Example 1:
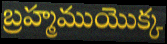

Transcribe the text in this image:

బ్రహ్మముయొక్క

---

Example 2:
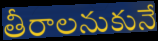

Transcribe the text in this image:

తీరాలనుకునే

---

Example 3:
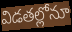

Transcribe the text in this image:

విడతల్లోనూ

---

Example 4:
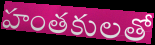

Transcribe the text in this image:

హంతకులతో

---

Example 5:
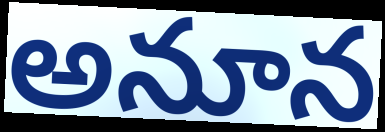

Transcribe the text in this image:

అనూన